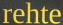
rehte